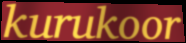
kurukoor